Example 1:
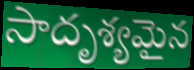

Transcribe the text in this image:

సాదృశ్యమైన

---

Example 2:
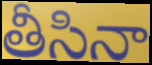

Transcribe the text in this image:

తీసినా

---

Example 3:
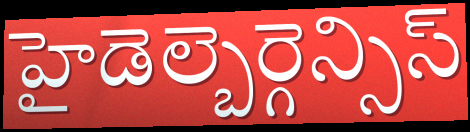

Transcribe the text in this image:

హైడెల్బెర్గెన్సిస్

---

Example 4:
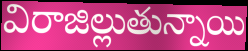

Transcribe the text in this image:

విరాజిల్లుతున్నాయి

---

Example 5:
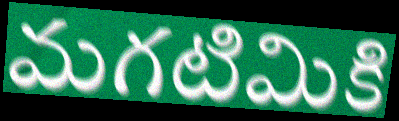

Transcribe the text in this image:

మగటిమికి